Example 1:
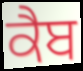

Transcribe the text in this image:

ਕੈਬ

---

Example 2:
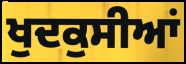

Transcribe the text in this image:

ਖੁਦਕੁਸੀਆਂ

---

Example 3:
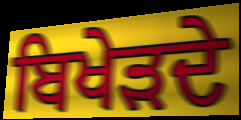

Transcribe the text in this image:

ਬਿਖੇੜਦੇ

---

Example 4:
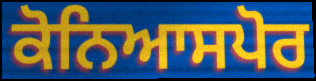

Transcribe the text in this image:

ਕੋਨਿਆਸਪੋਰ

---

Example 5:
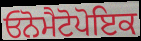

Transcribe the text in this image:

ਓਨੋਮੈਟੋਪੋਇਕ